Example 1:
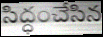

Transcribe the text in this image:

సిద్ధంచేసిన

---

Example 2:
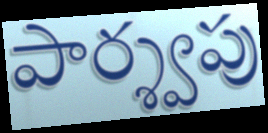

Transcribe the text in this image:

పార్శ్వపు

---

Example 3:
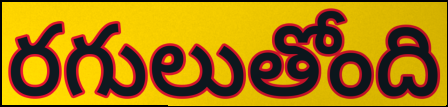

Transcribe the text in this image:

రగులుతోంది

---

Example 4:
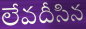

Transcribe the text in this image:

లేవదీసిన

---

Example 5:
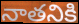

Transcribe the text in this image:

నాతనికి